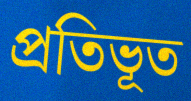
প্রতিভূত